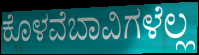
ಕೊಳವೆಬಾವಿಗಳೆಲ್ಲ